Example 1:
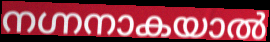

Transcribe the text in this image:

നഗ്നനാകയാൽ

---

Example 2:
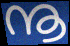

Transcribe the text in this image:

നൂ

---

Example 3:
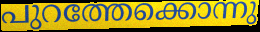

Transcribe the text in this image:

പുറത്തേക്കൊന്നു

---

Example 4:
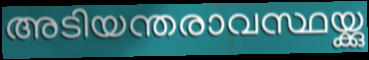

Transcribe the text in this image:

അടിയന്തരാവസ്ഥയ്ക്കു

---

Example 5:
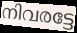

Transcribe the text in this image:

നിവരട്ടേ